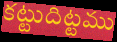
కట్టుదిట్టము